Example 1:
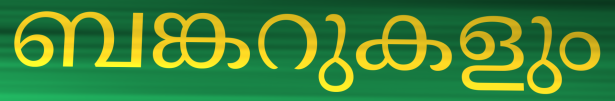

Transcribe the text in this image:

ബങ്കറുകളും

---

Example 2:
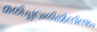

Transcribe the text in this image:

മരിച്ചവരിൽനിന്നും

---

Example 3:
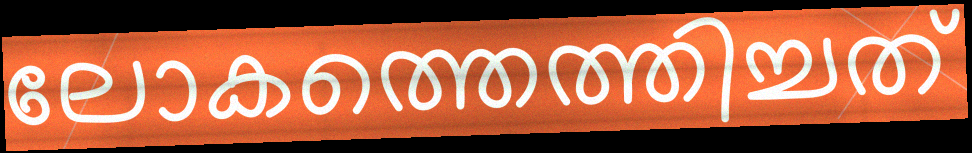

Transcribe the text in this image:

ലോകത്തെത്തിച്ചത്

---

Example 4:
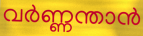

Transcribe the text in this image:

വർണ്ണന്താൻ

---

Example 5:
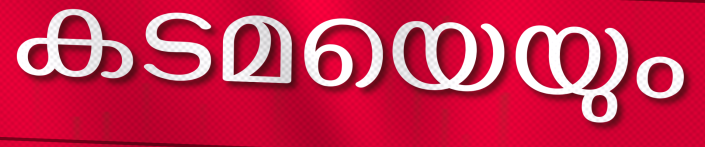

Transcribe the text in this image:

കടമയെയും